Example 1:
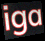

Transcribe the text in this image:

iga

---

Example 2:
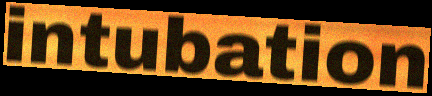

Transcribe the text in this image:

intubation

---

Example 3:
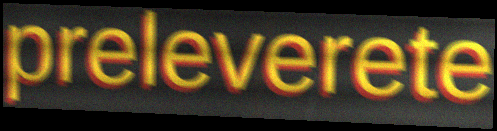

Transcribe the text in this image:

preleverete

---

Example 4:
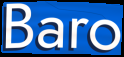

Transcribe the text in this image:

Baro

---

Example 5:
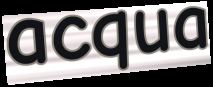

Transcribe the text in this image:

acqua